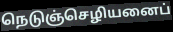
நெடுஞ்செழியனைப்